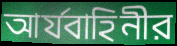
আর্যবাহিনীর